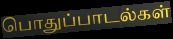
பொதுப்பாடல்கள்